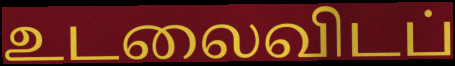
உடலைவிடப்